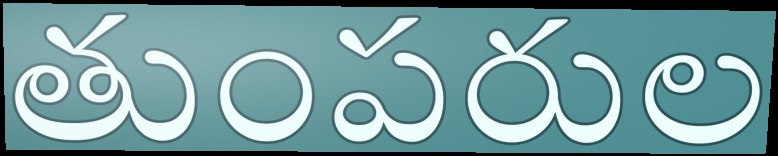
తుంపరుల